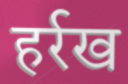
हर्रख